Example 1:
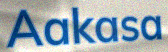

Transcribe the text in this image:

Aakasa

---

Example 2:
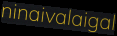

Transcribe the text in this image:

ninaivalaigal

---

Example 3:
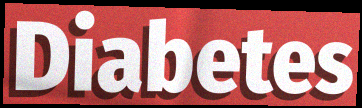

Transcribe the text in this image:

Diabetes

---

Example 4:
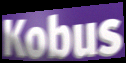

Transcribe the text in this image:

Kobus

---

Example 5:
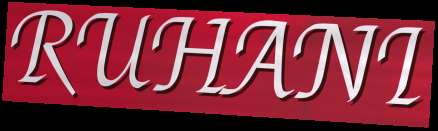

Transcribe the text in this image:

RUHANI